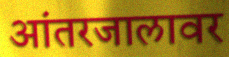
आंतरजालावर